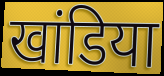
खांडिया